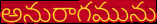
అనురాగమును